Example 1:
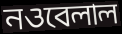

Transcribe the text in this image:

নওবেলাল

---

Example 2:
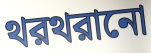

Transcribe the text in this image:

থরথরানো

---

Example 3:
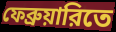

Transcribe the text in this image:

ফেব্রুয়ারিতে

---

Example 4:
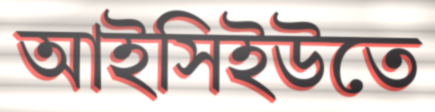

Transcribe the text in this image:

আইসিইউতে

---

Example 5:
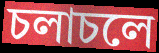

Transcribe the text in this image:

চলাচলে